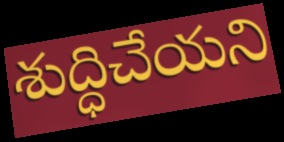
శుద్ధిచేయని